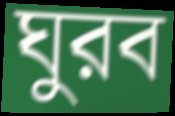
ঘুরব